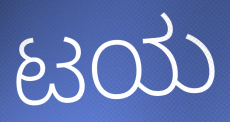
ಟಯ